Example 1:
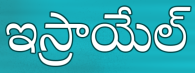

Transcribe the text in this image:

ఇస్రాయేల్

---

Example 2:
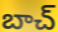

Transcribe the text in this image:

బాచ్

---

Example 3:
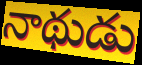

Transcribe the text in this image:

నాథుడు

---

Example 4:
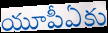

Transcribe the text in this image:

యూపీఏకు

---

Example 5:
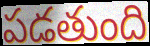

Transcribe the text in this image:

పడతుంది